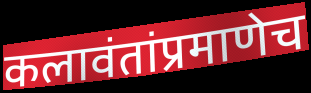
कलावंतांप्रमाणेच